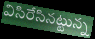
విసిరేసినట్టున్న